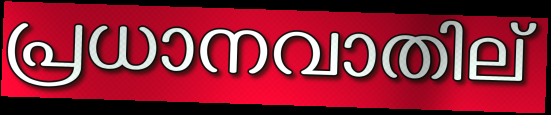
പ്രധാനവാതില്